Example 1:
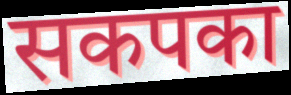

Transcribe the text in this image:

सकपका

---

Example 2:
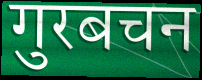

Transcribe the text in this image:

गुरबचन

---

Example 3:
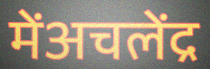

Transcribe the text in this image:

मेंअचलेंद्र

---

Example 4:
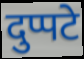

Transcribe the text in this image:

दुप्पटे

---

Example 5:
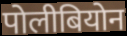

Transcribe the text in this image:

पोलीबियोन